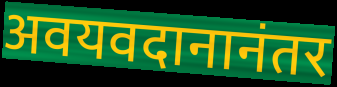
अवयवदानानंतर